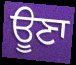
ਊਣਾ